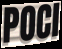
POCl